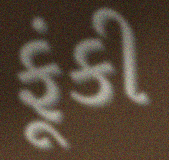
ફૂંકી